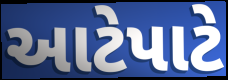
આટેપાટે